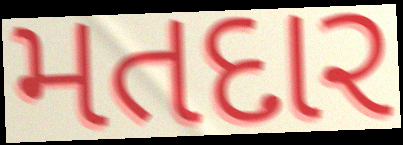
મતદાર